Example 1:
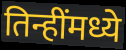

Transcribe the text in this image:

तिन्हींमध्ये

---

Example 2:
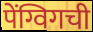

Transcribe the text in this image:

पेंग्विगची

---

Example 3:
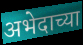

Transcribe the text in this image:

अभेदाच्या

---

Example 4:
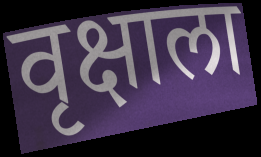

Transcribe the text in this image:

वृक्षाला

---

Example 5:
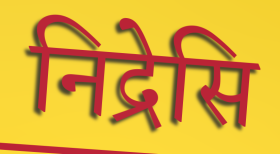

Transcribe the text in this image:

निद्रेसि